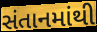
સંતાનમાંથી